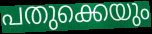
പതുക്കെയും